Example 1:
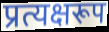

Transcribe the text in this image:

प्रत्यक्षरूप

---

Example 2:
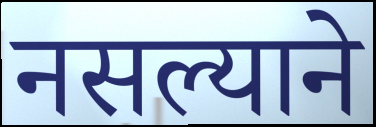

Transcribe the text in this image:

नसल्याने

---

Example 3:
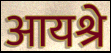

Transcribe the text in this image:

आयश्रे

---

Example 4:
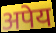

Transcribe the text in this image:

अपेय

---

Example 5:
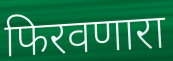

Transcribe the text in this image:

फिरवणारा